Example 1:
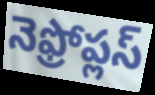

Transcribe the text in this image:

నెఫ్రోప్లస్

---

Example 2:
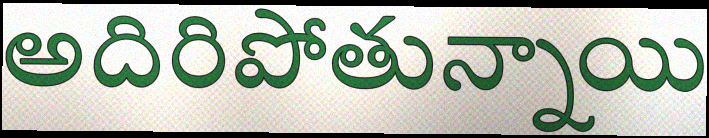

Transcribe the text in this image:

అదిరిపోతున్నాయి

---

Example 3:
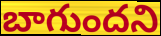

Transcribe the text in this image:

బాగుందని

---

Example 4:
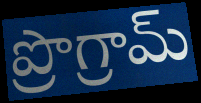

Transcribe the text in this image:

ప్రొగ్రామ్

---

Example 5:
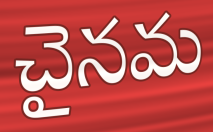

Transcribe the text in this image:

చైనమ